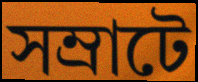
সম্ৰাটে